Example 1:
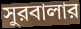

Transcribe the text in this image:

সুরবালার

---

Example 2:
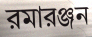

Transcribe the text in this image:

রমারঞ্জন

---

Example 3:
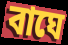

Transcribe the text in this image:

বাঘে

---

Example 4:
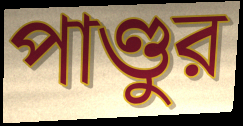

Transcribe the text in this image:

পাণ্ডুর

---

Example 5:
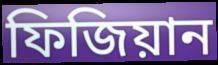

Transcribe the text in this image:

ফিজিয়ান